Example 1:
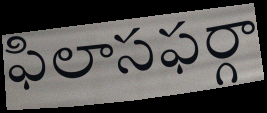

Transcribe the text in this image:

ఫిలాసఫర్గా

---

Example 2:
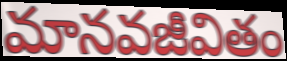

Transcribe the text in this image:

మానవజీవితం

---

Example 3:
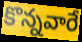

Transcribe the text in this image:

కొన్నవారే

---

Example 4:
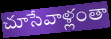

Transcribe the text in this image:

చూసేవాళ్లంతా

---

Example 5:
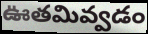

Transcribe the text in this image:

ఊతమివ్వడం